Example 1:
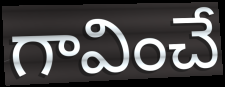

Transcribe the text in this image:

గావించే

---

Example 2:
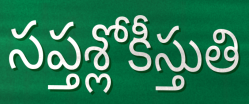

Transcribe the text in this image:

సప్తశ్లోకీస్తుతి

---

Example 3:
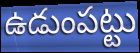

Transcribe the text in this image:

ఉడుంపట్టు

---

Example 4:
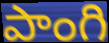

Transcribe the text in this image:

పాంగి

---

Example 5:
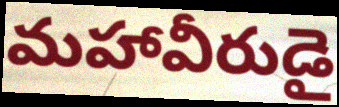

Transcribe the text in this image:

మహావీరుడై